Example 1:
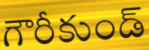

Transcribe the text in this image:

గౌరీకుండ్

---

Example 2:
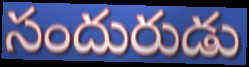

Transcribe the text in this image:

సందురుడు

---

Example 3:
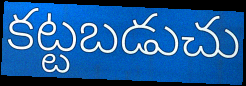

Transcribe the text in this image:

కట్టబడుచు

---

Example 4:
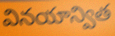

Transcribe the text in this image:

వినయాన్విత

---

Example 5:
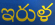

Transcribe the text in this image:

ఇరుళ